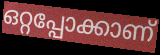
ഒറ്റപ്പോക്കാണ്